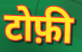
टोफ़ी